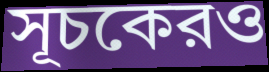
সূচকেরও